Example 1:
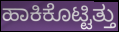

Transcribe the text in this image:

ಹಾಕಿಕೊಟ್ಟಿತ್ತು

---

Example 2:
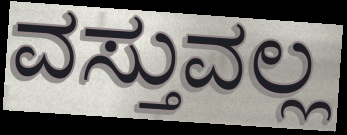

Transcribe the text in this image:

ವಸ್ತುವಲ್ಲ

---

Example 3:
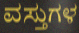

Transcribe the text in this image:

ವಸ್ತುಗಳ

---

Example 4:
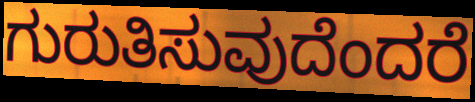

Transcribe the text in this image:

ಗುರುತಿಸುವುದೆಂದರೆ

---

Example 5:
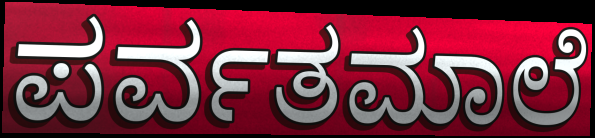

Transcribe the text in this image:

ಪರ್ವತಮಾಲೆ